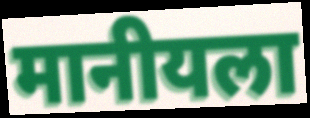
मानीयला